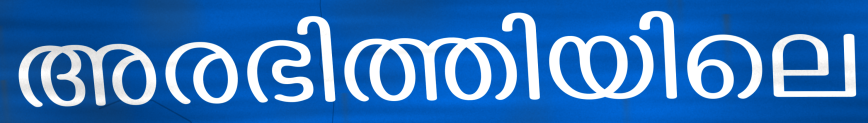
അരഭിത്തിയിലെ